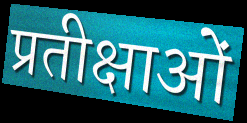
प्रतीक्षाओं